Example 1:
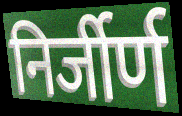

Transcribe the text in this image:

निर्जीर्ण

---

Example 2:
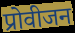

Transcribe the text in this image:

प्रोवीजन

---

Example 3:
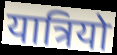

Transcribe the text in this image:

यात्रियो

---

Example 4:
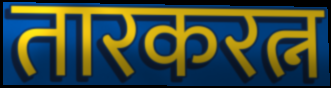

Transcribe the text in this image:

तारकरत्न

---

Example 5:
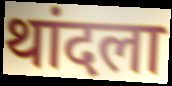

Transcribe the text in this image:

थांदला